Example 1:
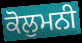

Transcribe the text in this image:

ਕੋਲੁਮਨੀ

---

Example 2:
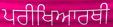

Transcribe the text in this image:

ਪਰੀਖਿਆਰਥੀ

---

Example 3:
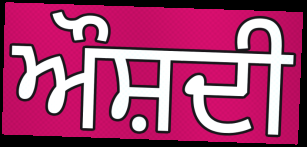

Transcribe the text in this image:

ਔਸ਼ਦੀ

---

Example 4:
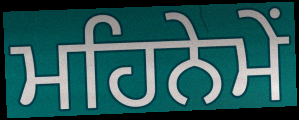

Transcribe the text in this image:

ਮਹਿਨੇਮੇਂ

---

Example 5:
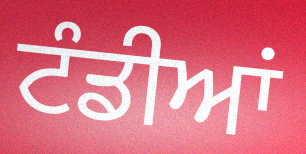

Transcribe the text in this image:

ਟੰਡੀਆਂ